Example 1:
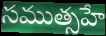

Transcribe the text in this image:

సముత్సహే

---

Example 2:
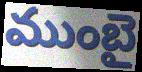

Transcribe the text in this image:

ముంబై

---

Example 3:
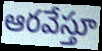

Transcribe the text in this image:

ఆరవేస్తూ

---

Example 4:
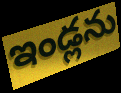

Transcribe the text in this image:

ఇండ్లను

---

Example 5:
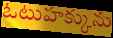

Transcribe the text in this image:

ఓటుహక్కును